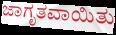
ಜಾಗೃತವಾಯಿತು